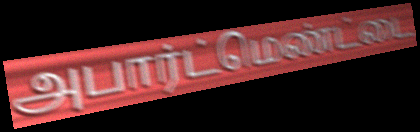
அபார்ட்மெண்ட்டை